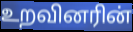
உறவினரின்